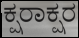
ಕ್ಷರಾಕ್ಷರ